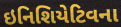
ઇનિશિયેટિવના